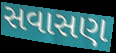
સવાસણ